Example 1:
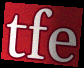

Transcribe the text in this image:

tfe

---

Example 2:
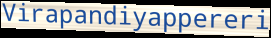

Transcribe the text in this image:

Virapandiyappereri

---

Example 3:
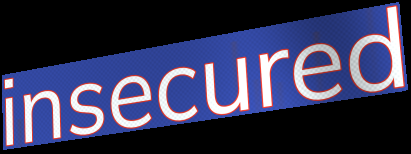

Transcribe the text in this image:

insecured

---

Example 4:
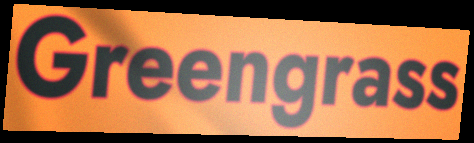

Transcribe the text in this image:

Greengrass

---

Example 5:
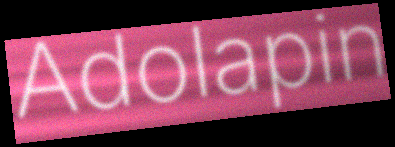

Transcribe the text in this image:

Adolapin